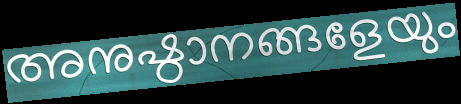
അനുഷ്ഠാനങ്ങളേയും